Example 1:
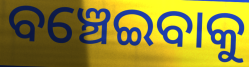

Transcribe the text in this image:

ବଞ୍ଚେଇବାକୁ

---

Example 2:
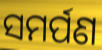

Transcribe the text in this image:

ସମର୍ପଣ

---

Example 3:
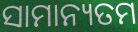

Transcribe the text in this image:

ସାମାନ୍ୟତମ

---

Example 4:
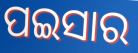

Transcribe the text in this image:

ପଇସାର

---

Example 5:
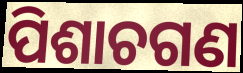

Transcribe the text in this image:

ପିଶାଚଗଣ